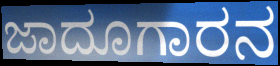
ಜಾದೂಗಾರನ